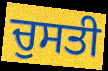
ਚੁਸਤੀ